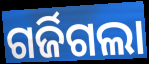
ଗର୍ଜିଗଲା